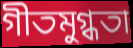
গীতমুগ্ধতা